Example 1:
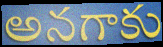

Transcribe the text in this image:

అనగాకు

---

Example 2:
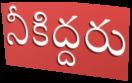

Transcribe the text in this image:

నీకిద్దరు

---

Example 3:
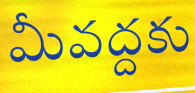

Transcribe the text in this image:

మీవద్దకు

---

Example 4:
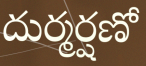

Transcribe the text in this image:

దుర్మర్షణో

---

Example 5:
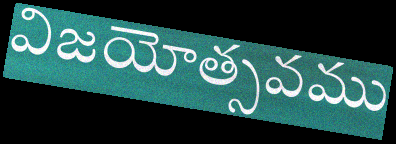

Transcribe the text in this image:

విజయోత్సవము